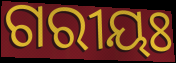
ଗରୀୟଃ